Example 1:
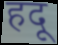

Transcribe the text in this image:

हदू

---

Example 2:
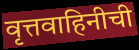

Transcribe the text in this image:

वृत्तवाहिनीची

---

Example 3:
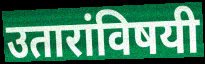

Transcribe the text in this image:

उतारांविषयी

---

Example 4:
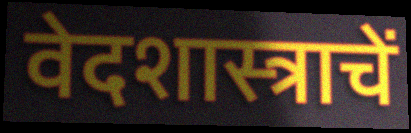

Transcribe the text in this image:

वेदशास्त्राचें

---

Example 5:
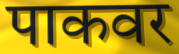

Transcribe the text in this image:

पाकवर